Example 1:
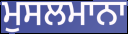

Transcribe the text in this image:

ਮੁਸਲਮਾਨਾ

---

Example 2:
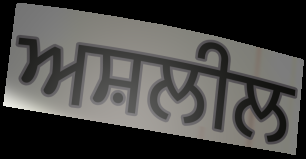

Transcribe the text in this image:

ਅਸ਼ਲੀਲ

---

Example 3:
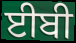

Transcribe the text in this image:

ਈਬੀ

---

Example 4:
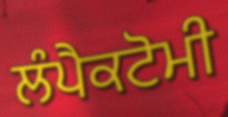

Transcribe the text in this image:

ਲੰਪੈਕਟੋਮੀ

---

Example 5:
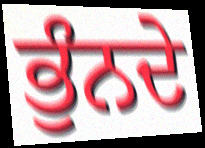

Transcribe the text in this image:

ਭੁੰਨਦੇ